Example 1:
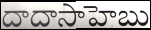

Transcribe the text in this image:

దాదాసాహెబు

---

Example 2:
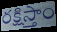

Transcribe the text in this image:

రక్షిస్తాం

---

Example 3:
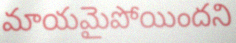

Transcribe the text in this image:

మాయమైపోయిందని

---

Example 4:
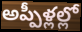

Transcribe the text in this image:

అప్పీళ్లల్లో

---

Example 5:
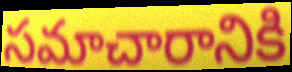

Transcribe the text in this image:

సమాచారానికి